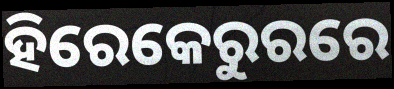
ହିରେକେରୁରରେ